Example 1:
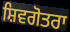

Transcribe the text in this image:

ਸ਼ਿਵਗੋਤਰਾ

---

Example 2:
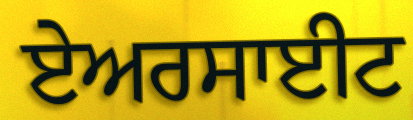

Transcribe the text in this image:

ਏਅਰਸਾਈਟ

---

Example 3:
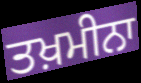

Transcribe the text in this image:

ਤਖ਼ਮੀਨਾ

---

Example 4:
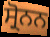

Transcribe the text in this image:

ਸ੍ਰੋਨਨ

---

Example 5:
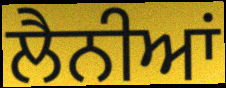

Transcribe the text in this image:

ਲੈਨੀਆਂ